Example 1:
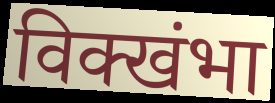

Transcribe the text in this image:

विक्खंभा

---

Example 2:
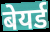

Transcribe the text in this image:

बेयर्ड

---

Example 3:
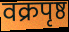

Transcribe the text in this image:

वक्रपृष्ठ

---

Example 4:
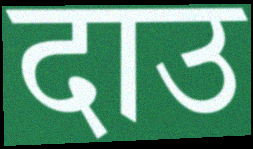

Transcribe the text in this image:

दाउ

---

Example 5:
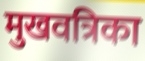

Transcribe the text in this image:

मुखवत्रिका